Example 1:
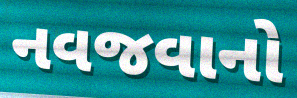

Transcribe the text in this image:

નવજવાનો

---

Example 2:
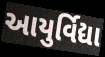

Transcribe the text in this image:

આયુર્વિદ્યા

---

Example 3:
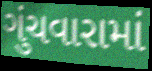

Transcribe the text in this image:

ગુંચવારામાં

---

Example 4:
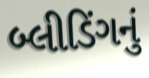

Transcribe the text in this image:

બ્લીડિંગનું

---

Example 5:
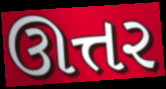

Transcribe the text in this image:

ઊત્તર